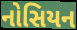
નોસિયન